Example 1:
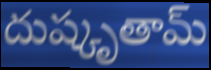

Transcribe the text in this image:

దుష్కృతామ్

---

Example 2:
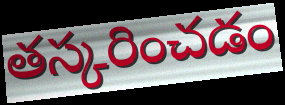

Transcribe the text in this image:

తస్కరించడం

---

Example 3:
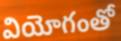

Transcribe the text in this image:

వియోగంతో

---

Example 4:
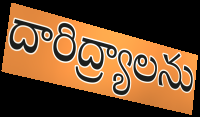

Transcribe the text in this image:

దారిద్ర్యాలను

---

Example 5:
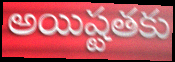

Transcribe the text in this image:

అయిష్టతకు